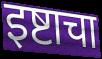
इष्टाचा